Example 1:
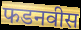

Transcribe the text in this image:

फडनवीस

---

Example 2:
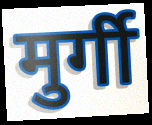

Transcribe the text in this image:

मुर्गी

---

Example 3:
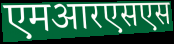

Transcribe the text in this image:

एमआरएसएस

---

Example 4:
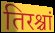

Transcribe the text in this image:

तिरश्चां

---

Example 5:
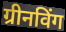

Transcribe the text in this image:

ग्रीनविंग